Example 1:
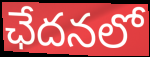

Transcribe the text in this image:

ఛేదనలో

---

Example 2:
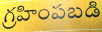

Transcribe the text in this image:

గ్రహింపబడి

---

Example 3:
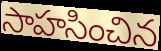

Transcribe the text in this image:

సాహసించిన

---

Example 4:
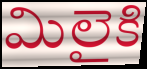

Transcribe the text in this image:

మిలైకి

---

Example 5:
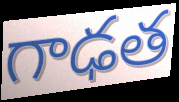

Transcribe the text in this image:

గాఢత